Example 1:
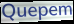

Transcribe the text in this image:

Quepem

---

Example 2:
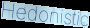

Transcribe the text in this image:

Hedonistic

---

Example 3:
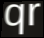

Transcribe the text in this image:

qr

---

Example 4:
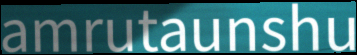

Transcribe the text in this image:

amrutaunshu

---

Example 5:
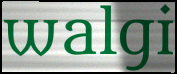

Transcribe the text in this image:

walgi